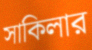
সাকিলার